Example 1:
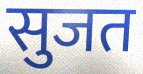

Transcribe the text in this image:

सुजत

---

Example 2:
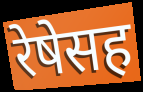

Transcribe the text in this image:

रेषेसह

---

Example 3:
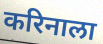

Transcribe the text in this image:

करिनाला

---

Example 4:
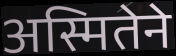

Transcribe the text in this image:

अस्मितेने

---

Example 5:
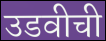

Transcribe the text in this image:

उडवीची